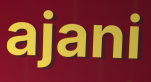
ajani